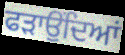
ਫੜਾਉਂਦਿਆਂ